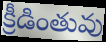
క్రీడింతువు